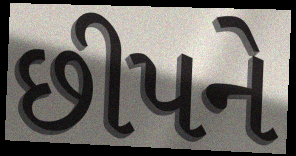
છીપને